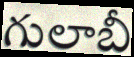
గులాబీ